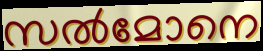
സൽമോനെ